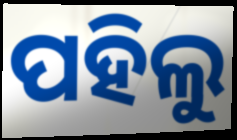
ପହିଲୁ